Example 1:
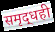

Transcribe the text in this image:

समृद्धही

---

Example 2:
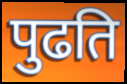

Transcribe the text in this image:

पुढति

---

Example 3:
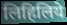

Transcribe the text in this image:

लिहिलिये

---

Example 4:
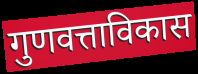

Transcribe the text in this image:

गुणवत्ताविकास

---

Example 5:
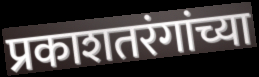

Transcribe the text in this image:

प्रकाशतरंगांच्या